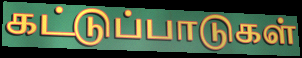
கட்டுப்பாடுகள்